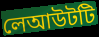
লেআউটটি